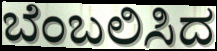
ಬೆಂಬಲಿಸಿದ